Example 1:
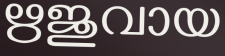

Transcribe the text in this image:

ഋജുവായ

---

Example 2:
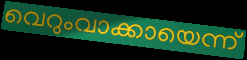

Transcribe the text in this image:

വെറുംവാക്കായെന്ന്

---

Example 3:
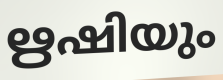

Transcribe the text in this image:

ഋഷിയും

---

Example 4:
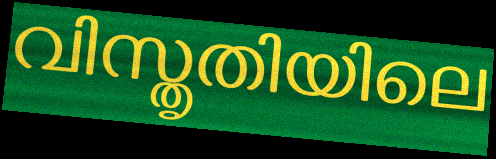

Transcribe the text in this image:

വിസ്തൃതിയിലെ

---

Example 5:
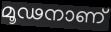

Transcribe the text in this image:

മൂഢനാണ്